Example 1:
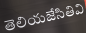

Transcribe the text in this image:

తెలియజేసితివి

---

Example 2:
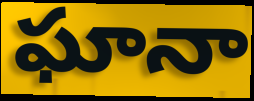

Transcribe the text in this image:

ఘానా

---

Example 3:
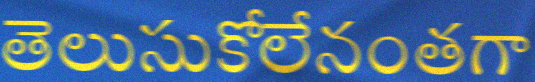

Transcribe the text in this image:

తెలుసుకోలేనంతగా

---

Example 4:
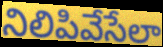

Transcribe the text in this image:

నిలిపివేసేలా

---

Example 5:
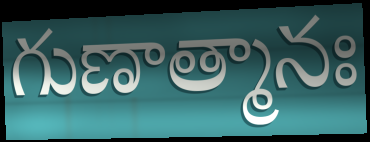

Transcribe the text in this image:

గుణాత్మానః